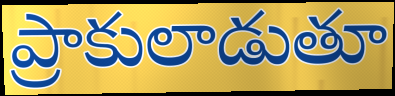
ప్రాకులాడుతూ